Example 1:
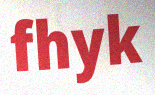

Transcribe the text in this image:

fhyk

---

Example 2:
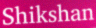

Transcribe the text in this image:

Shikshan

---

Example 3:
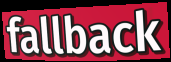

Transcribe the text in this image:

fallback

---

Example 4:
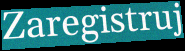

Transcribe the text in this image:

Zaregistruj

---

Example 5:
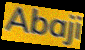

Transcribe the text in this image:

Abaji